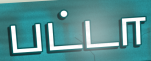
பட்டா